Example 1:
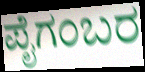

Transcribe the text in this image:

ಪೈಗಂಬರ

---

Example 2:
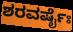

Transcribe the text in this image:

ಶರವರ್ಷೈಃ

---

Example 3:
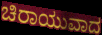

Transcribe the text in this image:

ಚಿರಾಯುವಾದ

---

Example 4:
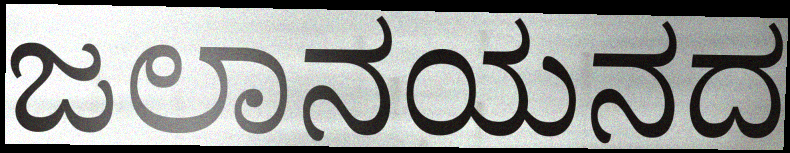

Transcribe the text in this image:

ಜಲಾನಯನದ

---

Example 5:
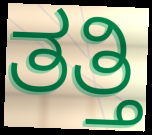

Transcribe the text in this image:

ತತ್ತಿ